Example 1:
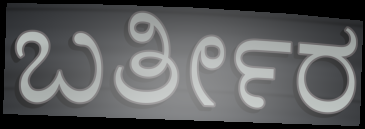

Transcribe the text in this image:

ಬರ್ತೀರ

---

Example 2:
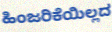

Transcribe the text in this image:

ಹಿಂಜರಿಕೆಯಿಲ್ಲದ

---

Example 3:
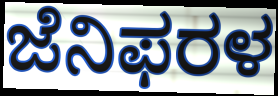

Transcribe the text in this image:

ಜೆನಿಫರಳ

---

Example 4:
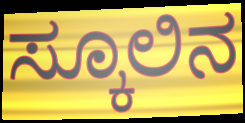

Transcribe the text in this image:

ಸ್ಕೂಲಿನ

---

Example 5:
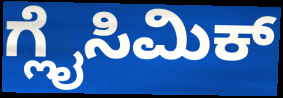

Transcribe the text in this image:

ಗ್ಲೈಸಿಮಿಕ್